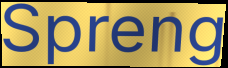
Spreng